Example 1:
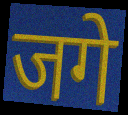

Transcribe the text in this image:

जगे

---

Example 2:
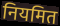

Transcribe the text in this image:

नियमित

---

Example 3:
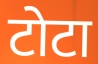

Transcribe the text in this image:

टोटा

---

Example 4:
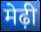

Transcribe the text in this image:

मेढ़ी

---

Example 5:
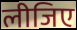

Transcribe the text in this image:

लीजिए